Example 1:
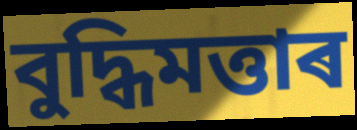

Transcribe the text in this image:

বুদ্ধিমত্তাৰ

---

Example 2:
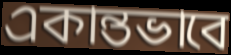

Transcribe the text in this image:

একান্তভাবে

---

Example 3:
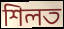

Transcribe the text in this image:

শিলত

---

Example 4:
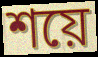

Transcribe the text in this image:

শয়ে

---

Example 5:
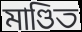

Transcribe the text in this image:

মাণ্ডিত